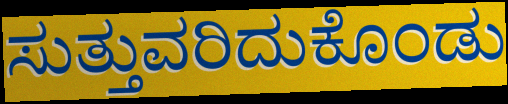
ಸುತ್ತುವರಿದುಕೊಂಡು